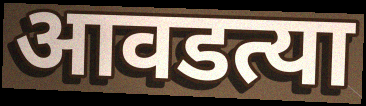
आवडत्या